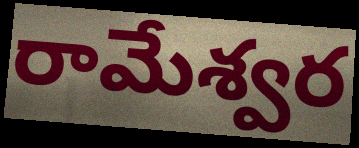
రామేశ్వర